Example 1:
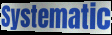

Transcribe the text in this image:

Systematic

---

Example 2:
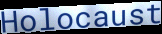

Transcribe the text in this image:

Holocaust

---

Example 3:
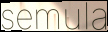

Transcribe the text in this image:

semula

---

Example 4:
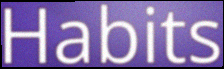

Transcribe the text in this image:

Habits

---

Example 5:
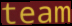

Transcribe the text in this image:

team